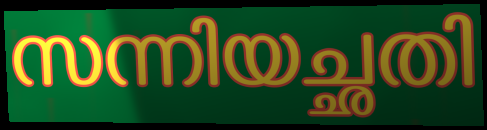
സന്നിയച്ഛതി